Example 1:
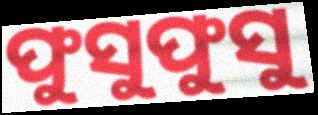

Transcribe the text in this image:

ଫୁସୁଫୁସୁ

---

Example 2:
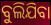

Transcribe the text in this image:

ବୁଲିଯିବା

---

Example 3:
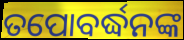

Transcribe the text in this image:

ତପୋବର୍ଦ୍ଧନଙ୍କ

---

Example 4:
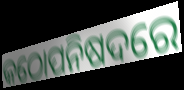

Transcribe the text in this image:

କଠୋପନିଷଦରେ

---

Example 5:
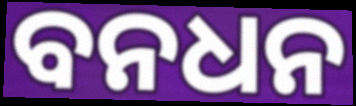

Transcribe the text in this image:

ବନଧନ